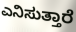
ಎನಿಸುತ್ತಾರೆ